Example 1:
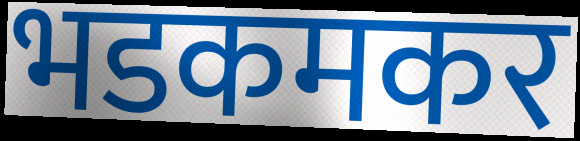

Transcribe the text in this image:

भडकमकर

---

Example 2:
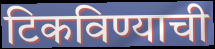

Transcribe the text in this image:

टिकविण्याची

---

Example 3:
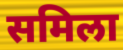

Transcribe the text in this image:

समिला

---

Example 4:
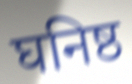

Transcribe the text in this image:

घनिष्ठ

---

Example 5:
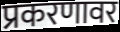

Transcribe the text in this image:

प्रकरणावर